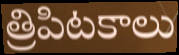
త్రిపిటకాలు